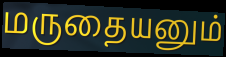
மருதையனும்